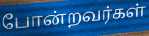
போன்றவர்கள்